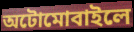
অটোমোবাইলে